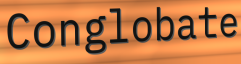
Conglobate